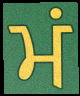
ਮਂ